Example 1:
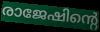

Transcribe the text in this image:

രാജേഷിന്റെ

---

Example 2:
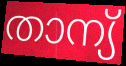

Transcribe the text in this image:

താന്യ്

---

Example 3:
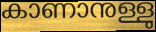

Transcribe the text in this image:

കാണാനുള്ളു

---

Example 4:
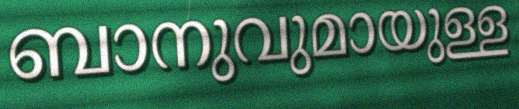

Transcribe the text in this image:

ബാനുവുമായുള്ള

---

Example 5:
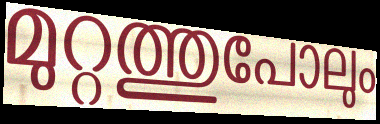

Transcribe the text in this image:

മുറ്റത്തുപോലും